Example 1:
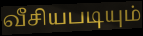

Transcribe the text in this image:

வீசியபடியும்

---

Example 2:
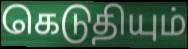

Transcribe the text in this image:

கெடுதியும்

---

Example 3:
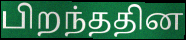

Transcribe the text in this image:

பிறந்ததின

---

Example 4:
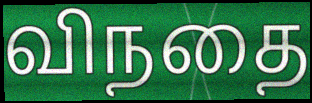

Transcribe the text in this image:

விநதை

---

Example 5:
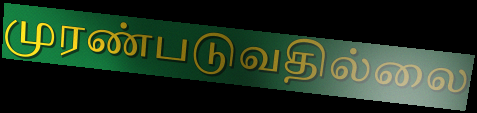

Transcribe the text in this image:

முரண்படுவதில்லை